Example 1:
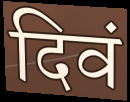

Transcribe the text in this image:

दिवं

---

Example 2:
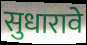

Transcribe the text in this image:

सुधारावे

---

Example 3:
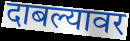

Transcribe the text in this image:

दाबल्यावर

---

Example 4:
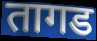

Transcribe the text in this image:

तागड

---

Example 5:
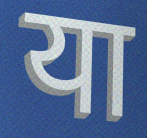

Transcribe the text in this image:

या